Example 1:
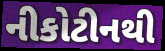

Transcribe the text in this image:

નીકોટીનથી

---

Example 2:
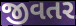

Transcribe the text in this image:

જીવતર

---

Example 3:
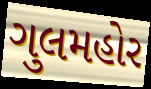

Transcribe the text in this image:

ગુલમહોર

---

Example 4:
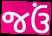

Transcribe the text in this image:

જઉં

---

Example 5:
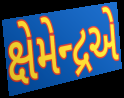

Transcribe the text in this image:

ક્ષેમેન્દ્રએ